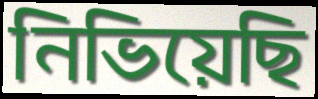
নিভিয়েছি